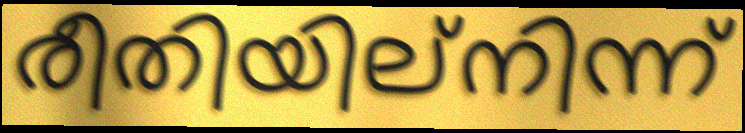
രീതിയില്നിന്ന്